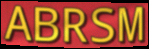
ABRSM